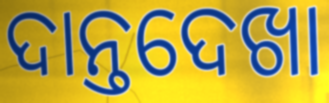
ଦାନ୍ତଦେଖା